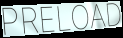
PRELOAD